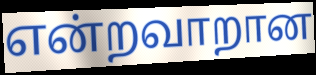
என்றவாறான